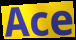
Ace